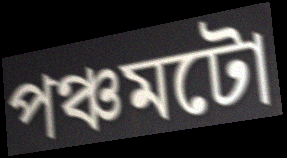
পঞ্চমটো